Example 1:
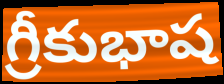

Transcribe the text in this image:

గ్రీకుభాష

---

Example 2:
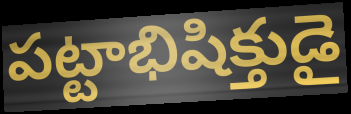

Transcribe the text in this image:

పట్టాభిషిక్తుడై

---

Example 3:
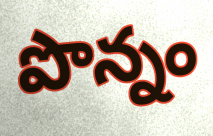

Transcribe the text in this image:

పొన్నం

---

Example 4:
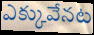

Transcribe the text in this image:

ఎక్కువేనట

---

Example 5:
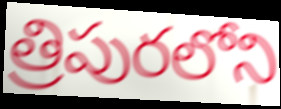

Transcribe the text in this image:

త్రిపురలోని